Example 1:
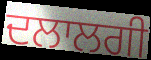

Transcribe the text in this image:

ਦਲਾਲਗੀ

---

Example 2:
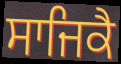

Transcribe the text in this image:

ਸਾਜਿਕੈ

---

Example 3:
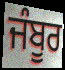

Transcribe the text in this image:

ਜੰਬੂਰ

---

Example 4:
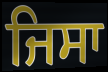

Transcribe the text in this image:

ਜਿਸਾ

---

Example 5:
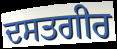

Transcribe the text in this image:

ਦਸਤਗੀਰ